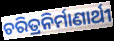
ଚରିତ୍ରନିର୍ମାଣାର୍ଥୀ